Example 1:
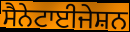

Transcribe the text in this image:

ਸੈਨੇਟਾਈਜੇਸ਼ਨ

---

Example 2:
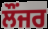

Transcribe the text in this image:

ਲੌਂਜਰ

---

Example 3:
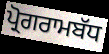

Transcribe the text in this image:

ਪ੍ਰੋਗਰਾਮਬੱਧ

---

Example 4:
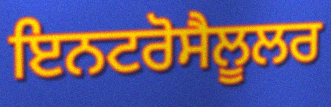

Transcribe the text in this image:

ਇਨਟਰੋਸੈਲੂਲਰ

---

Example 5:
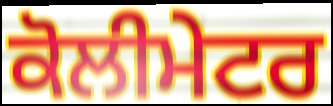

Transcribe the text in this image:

ਕੋਲੀਮੇਟਰ